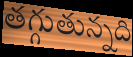
తగ్గుతున్నది